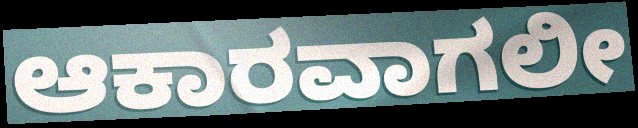
ಆಕಾರವಾಗಲೀ